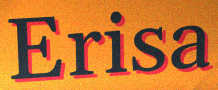
Erisa